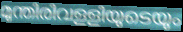
മുന്തിരിവളളിയുടെയും